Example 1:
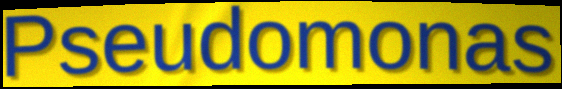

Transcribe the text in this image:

Pseudomonas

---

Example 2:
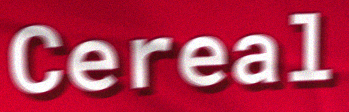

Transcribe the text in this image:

Cereal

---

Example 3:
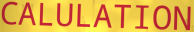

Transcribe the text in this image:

CALULATION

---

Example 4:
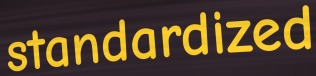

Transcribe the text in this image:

standardized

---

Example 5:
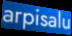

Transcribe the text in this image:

arpisalu